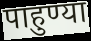
पाहुण्या